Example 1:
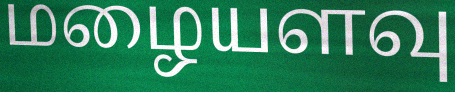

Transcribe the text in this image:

மழையளவு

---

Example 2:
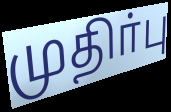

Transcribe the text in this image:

முதிர்பு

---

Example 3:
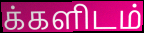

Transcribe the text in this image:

க்களிடம்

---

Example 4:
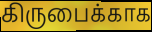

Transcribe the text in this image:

கிருபைக்காக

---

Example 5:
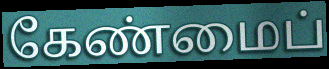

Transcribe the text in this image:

கேண்மைப்